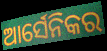
ଆର୍ସେନିକର